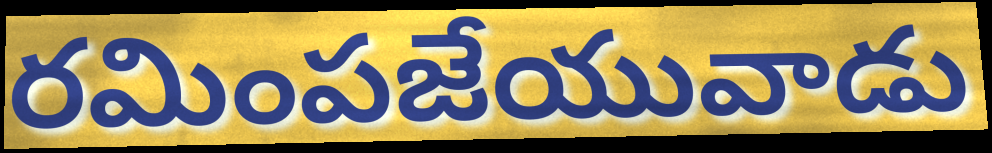
రమింపజేయువాడు